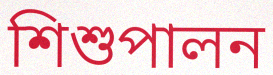
শিশুপালন